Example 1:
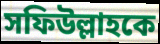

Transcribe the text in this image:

সফিউল্লাহকে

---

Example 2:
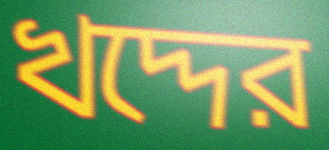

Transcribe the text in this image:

খদ্দের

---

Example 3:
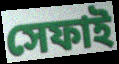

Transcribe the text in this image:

সেফাই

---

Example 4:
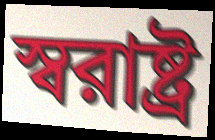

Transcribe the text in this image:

স্বরাষ্ট্র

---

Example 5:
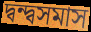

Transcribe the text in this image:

দ্বন্দ্বসমাস